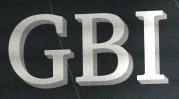
GBI